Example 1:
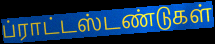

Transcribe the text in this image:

ப்ராட்டஸ்டண்டுகள்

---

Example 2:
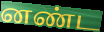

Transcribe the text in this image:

னண்ட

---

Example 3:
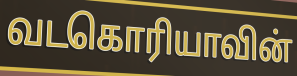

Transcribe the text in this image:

வடகொரியாவின்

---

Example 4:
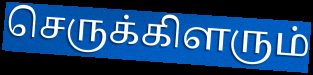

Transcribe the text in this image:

செருக்கிளரும்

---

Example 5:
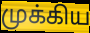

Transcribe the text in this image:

முக்கிய